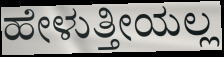
ಹೇಳುತ್ತೀಯಲ್ಲ